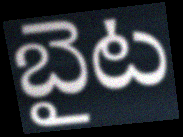
బైట